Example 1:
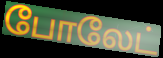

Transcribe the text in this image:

போலேட்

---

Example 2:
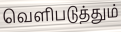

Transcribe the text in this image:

வெளிபடுத்தும்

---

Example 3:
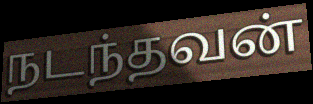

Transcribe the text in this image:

நடந்தவன்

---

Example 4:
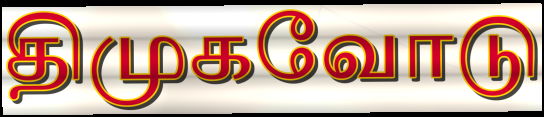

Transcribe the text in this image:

திமுகவோடு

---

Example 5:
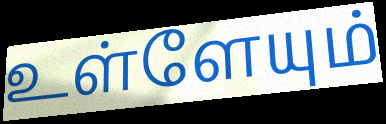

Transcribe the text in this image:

உள்ளேயும்